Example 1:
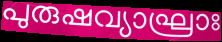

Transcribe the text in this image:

പുരുഷവ്യാഘ്രാഃ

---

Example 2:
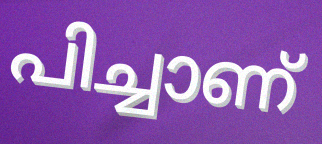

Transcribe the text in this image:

പിച്ചാണ്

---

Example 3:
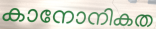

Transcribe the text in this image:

കാനോനികത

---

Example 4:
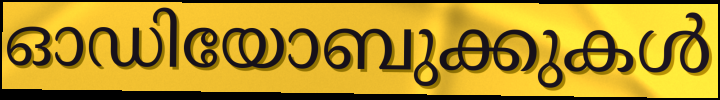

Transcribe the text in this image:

ഓഡിയോബുക്കുകൾ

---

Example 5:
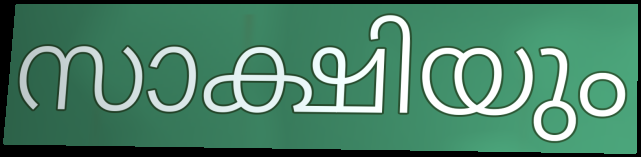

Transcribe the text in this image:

സാക്ഷിയും